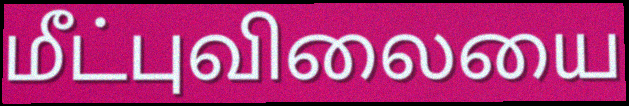
மீட்புவிலையை